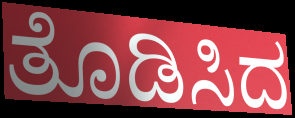
ತೊಡಿಸಿದ